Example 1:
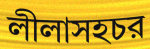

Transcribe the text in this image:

লীলাসহচর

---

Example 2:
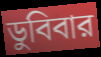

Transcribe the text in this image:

ডুবিবার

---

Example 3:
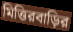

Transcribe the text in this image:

মিত্তিরবাড়ির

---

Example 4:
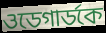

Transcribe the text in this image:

ওডেগার্ডকে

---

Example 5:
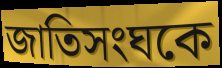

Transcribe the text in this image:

জাতিসংঘকে